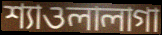
শ্যাওলালাগা